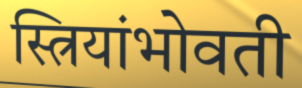
स्त्रियांभोवती